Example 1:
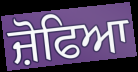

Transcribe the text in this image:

ਜ਼ੋਫਿਆ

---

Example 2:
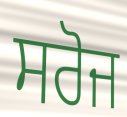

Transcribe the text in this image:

ਸਰੋਜ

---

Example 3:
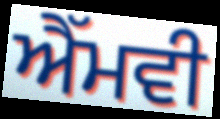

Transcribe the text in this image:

ਐੱਮਵੀ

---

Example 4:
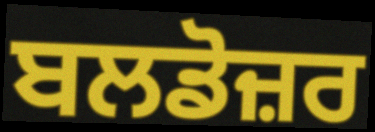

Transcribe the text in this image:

ਬਲਡੋਜ਼ਰ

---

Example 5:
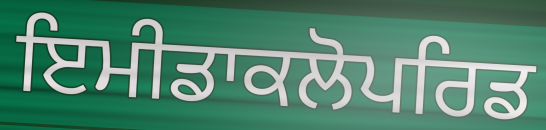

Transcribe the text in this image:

ਇਮੀਡਾਕਲੋਪਰਿਡ